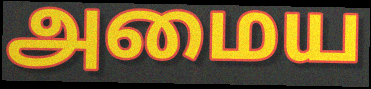
அமைய